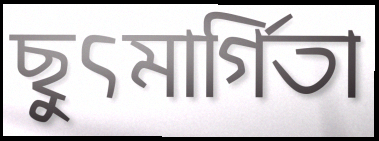
ছুৎমার্গিতা